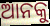
ଆନକୁ